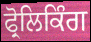
ਫ੍ਰੋਲਿਕਿੰਗ